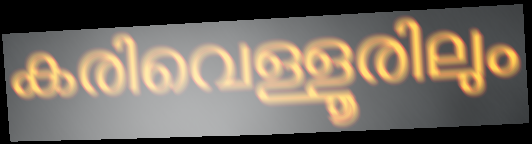
കരിവെള്ളൂരിലും